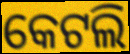
କେଟଲି